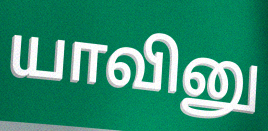
யாவினு